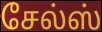
சேல்ஸ்